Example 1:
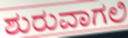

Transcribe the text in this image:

ಶುರುವಾಗಲಿ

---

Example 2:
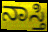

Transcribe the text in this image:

ನಾಸ್ತಿ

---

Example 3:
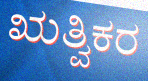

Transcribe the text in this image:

ಋತ್ವಿಕರ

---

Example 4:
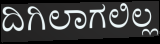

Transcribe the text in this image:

ದಿಗಿಲಾಗಲಿಲ್ಲ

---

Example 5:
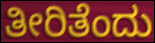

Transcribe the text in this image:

ತೀರಿತೆಂದು